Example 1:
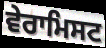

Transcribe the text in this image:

ਵੇਰਾਮਿਸਟ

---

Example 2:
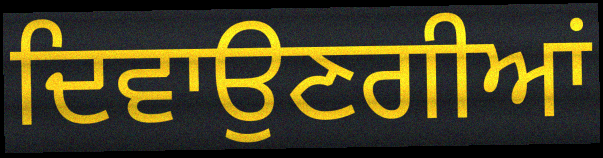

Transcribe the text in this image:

ਦਿਵਾਉਣਗੀਆਂ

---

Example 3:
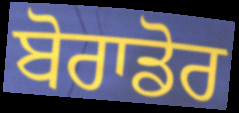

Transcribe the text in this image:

ਬੋਰਾਡੋਰ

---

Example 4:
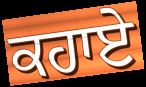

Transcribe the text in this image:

ਕਹਾਏ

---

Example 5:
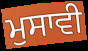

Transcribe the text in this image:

ਮੁਸਾਵੀ